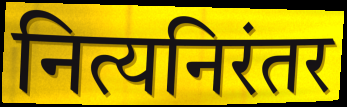
नित्यनिरंतर